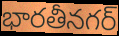
భారతీనగర్